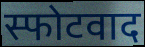
स्फोटवाद